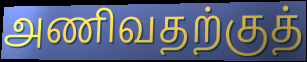
அணிவதற்குத்